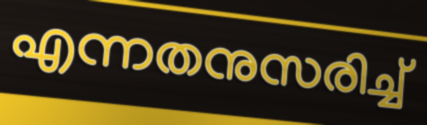
എന്നതനുസരിച്ച്